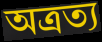
অত্রত্য